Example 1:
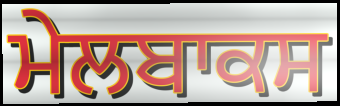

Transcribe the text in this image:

ਮੇਲਬਾਕਸ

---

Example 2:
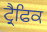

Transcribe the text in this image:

ਟ੍ਰੈਫਿਕ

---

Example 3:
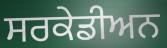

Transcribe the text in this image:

ਸਰਕੇਡੀਅਨ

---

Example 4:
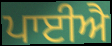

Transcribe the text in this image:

ਪਾਈਐ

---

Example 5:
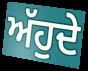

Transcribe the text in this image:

ਅੱਹੁਦੇ